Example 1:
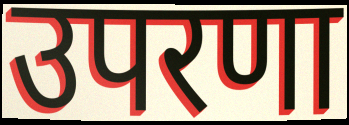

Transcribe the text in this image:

उपरणा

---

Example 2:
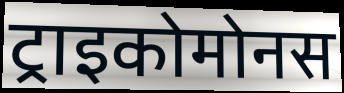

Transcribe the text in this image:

ट्राइकोमोनस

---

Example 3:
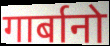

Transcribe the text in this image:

गार्बानो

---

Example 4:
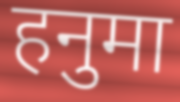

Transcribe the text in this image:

हनुमा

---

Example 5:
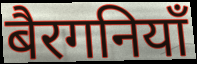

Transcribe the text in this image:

बैरगनियाँ